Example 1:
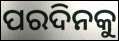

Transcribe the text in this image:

ପରଦିନକୁ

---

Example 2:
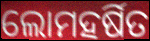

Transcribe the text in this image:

ଲୋମହର୍ଷିତ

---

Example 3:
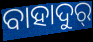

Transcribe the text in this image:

ବାହାଦୁର୍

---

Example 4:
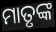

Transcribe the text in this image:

ମାତୃଙ୍କ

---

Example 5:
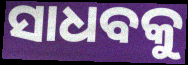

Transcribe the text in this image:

ସାଧବକୁ